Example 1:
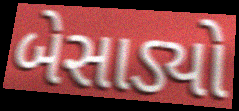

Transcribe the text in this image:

બેસાડ્યો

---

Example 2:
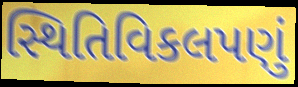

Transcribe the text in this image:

સ્થિતિવિકલપણું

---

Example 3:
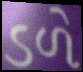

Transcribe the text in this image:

ડળે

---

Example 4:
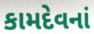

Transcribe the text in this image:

કામદેવનાં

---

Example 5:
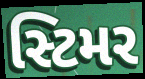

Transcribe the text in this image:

સ્ટિમર